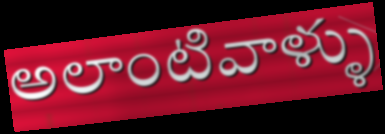
అలాంటివాళ్ళు